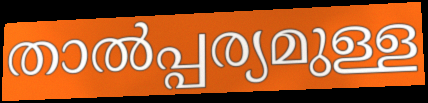
താൽപ്പര്യമുള്ള